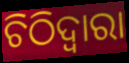
ଚିଠିଦ୍ୱାରା